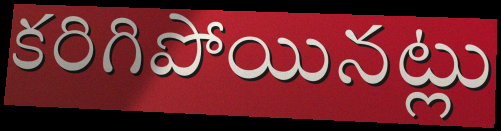
కరిగిపోయినట్లు